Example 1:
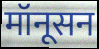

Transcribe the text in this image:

मॉनूसन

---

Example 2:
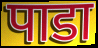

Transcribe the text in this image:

पाडा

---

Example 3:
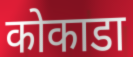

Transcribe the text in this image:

कोकाडा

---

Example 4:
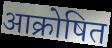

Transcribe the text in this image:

आक्रोषित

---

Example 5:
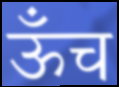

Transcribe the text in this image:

ऊँच